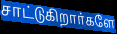
சாட்டுகிறார்களே